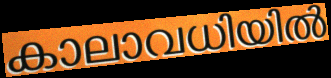
കാലാവധിയിൽ